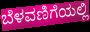
ಬೆಳವಣಿಗೆಯಲ್ಲಿ